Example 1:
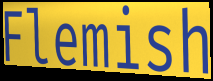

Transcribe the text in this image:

Flemish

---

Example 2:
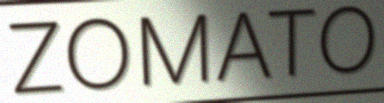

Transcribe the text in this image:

ZOMATO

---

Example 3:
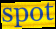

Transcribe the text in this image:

spot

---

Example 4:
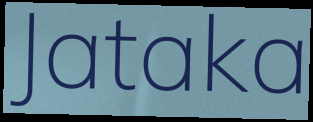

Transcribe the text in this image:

Jataka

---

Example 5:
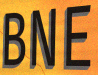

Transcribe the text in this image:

BNE